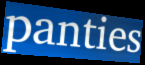
panties